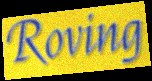
Roving